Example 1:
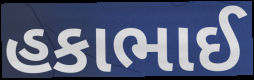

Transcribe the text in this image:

હકાભાઈ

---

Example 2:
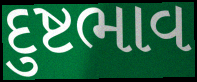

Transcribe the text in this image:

દુષ્ટભાવ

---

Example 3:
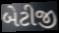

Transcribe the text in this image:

બેટીજી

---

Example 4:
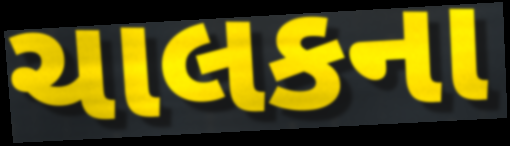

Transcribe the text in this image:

ચાલકના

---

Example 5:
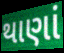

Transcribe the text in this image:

થાણાં